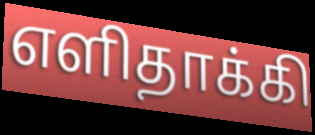
எளிதாக்கி